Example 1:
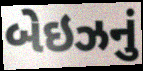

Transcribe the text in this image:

બેઇઝનું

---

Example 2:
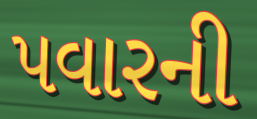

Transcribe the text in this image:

પવારની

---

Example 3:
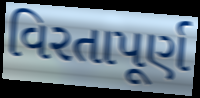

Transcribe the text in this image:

વિરતાપૂર્ણ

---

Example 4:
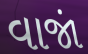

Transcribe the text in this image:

વાજાં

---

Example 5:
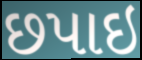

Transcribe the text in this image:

છપાઇ